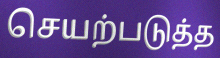
செயற்படுத்த